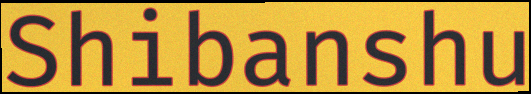
Shibanshu